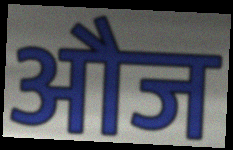
औज